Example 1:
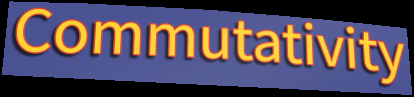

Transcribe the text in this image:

Commutativity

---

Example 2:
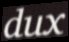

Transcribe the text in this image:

dux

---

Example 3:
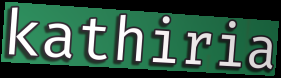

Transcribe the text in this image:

kathiria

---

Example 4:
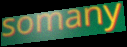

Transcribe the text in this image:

somany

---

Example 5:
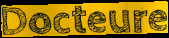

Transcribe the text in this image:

Docteure